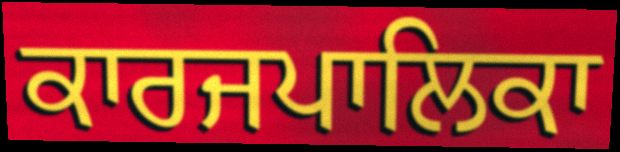
ਕਾਰਜਪਾਲਿਕਾ